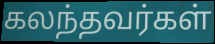
கலந்தவர்கள்